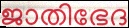
ജാതിഭേദ